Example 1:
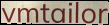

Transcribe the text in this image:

vmtailor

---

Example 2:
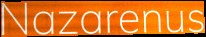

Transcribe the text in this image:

Nazarenus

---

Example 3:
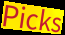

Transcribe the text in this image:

Picks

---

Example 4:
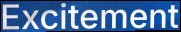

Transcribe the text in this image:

Excitement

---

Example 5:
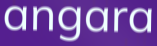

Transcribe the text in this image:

angara